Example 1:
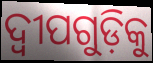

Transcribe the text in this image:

ଦ୍ୱୀପଗୁଡ଼ିକୁ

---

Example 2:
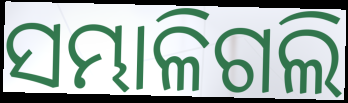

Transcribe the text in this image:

ସମ୍ଭାଳିଗଲି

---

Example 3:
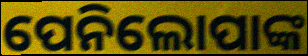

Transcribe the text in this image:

ପେନିଲୋପାଙ୍କ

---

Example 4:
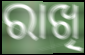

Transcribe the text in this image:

ରାଖି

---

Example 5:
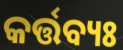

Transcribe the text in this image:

କର୍ତ୍ତବ୍ୟଃ